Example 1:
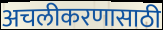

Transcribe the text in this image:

अचलीकरणासाठी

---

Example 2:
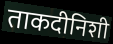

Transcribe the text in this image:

ताकदीनिशी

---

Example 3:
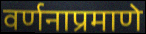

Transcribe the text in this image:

वर्णनाप्रमाणे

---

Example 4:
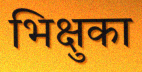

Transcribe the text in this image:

भिक्षुका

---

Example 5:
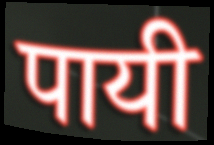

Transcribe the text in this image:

पायी